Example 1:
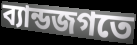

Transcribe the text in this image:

ব্যান্ডজগতে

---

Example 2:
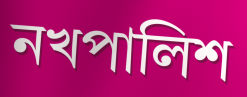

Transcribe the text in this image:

নখপালিশ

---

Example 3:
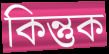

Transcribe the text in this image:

কিন্তুক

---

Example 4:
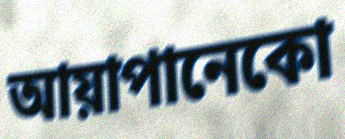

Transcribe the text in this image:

আয়াপানেকো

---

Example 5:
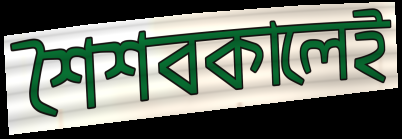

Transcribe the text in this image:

শৈশবকালেই